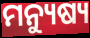
ମନ୍ୟୁଷ୍ୟ